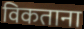
विकताना